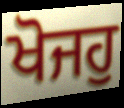
ਖੋਜਹੁ